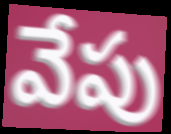
వేపు